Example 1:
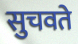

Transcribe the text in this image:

सुचवते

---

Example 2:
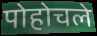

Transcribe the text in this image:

पोहोचले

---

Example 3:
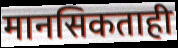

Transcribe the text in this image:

मानसिकताही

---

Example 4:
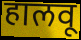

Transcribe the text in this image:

हालवू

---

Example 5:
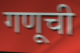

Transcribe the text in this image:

गणूची